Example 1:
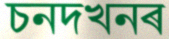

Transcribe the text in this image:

চনদখনৰ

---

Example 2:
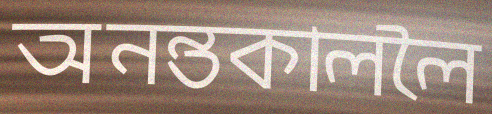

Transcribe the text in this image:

অনন্তকাললৈ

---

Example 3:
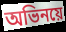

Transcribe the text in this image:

অভিনয়ে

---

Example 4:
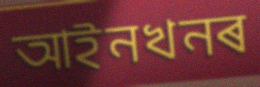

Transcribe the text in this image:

আইনখনৰ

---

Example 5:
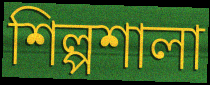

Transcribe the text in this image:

শিল্পশালা